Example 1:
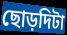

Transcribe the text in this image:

ছোড়দিটা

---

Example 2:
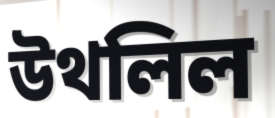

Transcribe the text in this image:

উথলিল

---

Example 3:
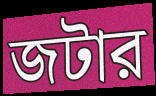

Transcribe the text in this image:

জটার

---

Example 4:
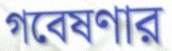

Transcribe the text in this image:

গবেষণার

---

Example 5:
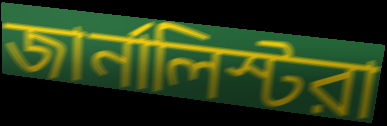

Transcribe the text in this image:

জার্নালিস্টরা